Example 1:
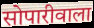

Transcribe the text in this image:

सोपारीवाला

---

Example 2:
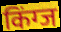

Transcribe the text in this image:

किंग्ज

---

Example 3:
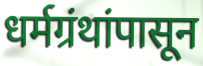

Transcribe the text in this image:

धर्मग्रंथांपासून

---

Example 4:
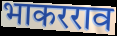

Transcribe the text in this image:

भाकरराव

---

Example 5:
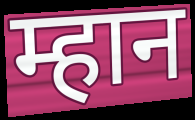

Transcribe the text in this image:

म्हान